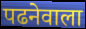
पढनेवाला